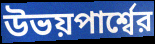
উভয়পার্শ্বের